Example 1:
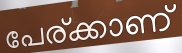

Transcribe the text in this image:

പേര്ക്കാണ്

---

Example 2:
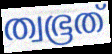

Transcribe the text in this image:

ത്വഭൂത്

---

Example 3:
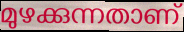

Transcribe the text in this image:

മുഴക്കുന്നതാണ്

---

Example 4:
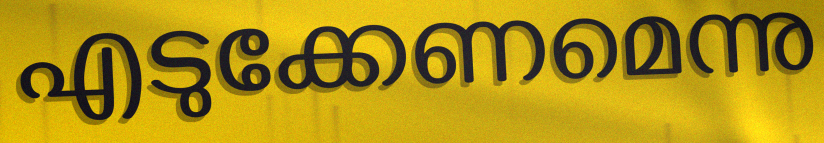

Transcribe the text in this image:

എടുക്കേണമെന്നു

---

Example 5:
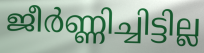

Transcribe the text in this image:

ജീർണ്ണിച്ചിട്ടില്ല